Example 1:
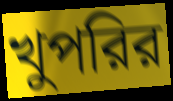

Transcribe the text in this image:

খুপরির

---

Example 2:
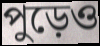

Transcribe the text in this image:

পুড়েও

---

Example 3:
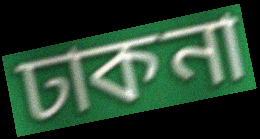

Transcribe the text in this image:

ঢাকনা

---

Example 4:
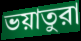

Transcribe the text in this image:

ভয়াতুরা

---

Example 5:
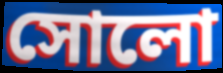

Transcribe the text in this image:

সোলো